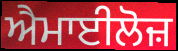
ਐਮਾਈਲੋਜ਼